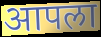
आपला